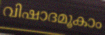
വിഷാദമൂകാം